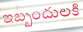
ఇబ్బందులకి